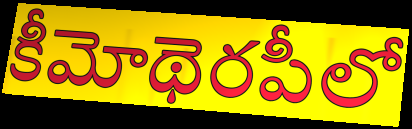
కీమోథెరపీలో